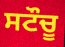
ਸਟੌਚੂ